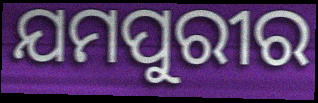
ଯମପୁରୀର